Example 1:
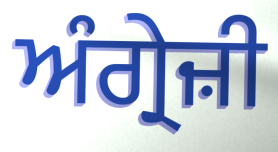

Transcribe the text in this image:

ਅੰਗ੍ਰੇਜ਼ੀ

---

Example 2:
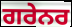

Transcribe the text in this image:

ਗਰੇਨਰ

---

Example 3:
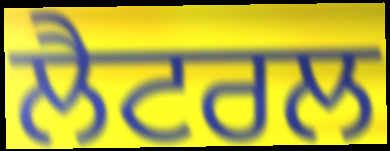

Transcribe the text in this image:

ਲੈਟਰਲ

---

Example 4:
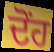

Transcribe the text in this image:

ਦੋਂਹ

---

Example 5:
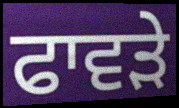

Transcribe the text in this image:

ਫਾਵੜੇ